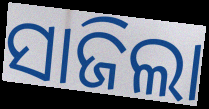
ସାଜିଲା